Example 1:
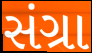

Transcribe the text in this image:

સંગ્રા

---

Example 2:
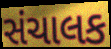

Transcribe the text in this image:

સંચાલક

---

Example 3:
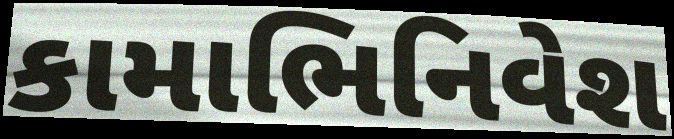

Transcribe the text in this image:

કામાભિનિવેશ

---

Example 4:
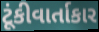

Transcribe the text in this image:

ટૂંકીવાર્તાકાર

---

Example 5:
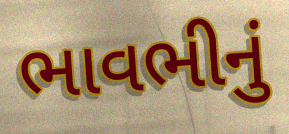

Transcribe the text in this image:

ભાવભીનું